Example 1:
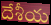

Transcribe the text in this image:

దేశీయ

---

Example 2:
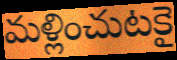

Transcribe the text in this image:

మళ్లించుటకై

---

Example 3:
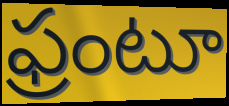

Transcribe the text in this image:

ఫ్రంటూ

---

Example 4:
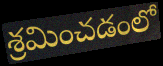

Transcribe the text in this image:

శ్రమించడంలో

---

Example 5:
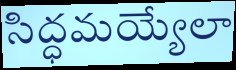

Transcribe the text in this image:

సిద్ధమయ్యేలా